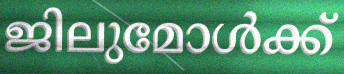
ജിലുമോൾക്ക്